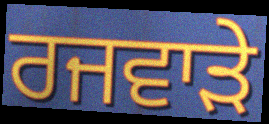
ਰਜਵਾੜੇ